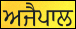
ਅਜੈਪਾਲ